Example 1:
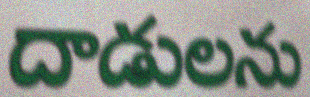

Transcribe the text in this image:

దాడులను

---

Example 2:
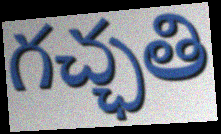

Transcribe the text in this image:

గచ్ఛతి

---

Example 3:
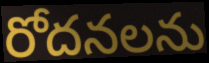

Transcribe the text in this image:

రోదనలను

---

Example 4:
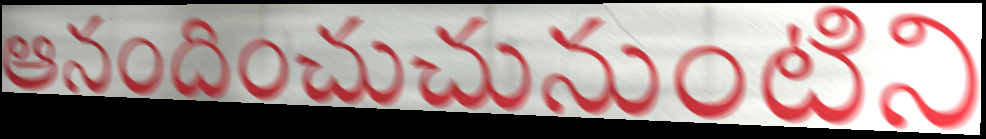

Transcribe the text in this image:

ఆనందించుచునుంటిని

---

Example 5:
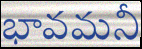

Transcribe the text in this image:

భావమనీ